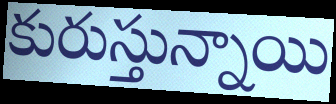
కురుస్తున్నాయి